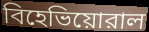
বিহেভিয়োরাল